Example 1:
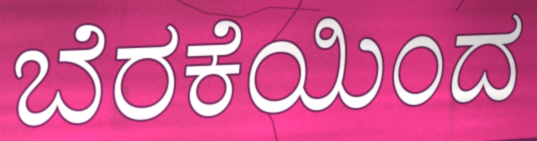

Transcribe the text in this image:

ಬೆರಕೆಯಿಂದ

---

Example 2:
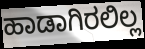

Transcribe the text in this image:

ಹಾಡಾಗಿರಲಿಲ್ಲ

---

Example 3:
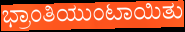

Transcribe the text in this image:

ಭ್ರಾಂತಿಯುಂಟಾಯಿತು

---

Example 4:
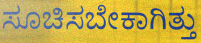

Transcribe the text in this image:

ಸೂಚಿಸಬೇಕಾಗಿತ್ತು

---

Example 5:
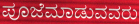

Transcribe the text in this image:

ಪೂಜೆಮಾಡುವವರು